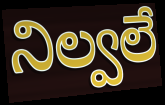
నిల్వలే